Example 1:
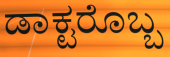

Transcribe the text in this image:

ಡಾಕ್ಟರೊಬ್ಬ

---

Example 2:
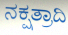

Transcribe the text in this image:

ನಕ್ಷತ್ರಾದಿ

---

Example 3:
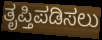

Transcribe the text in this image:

ತೃಪ್ತಿಪಡಿಸಲು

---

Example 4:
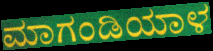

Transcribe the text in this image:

ಮಾಗಂಡಿಯಾಳ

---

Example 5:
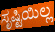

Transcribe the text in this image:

ಸೃಷ್ಟಿಯಿಲ್ಲ